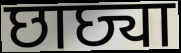
छाछ्या